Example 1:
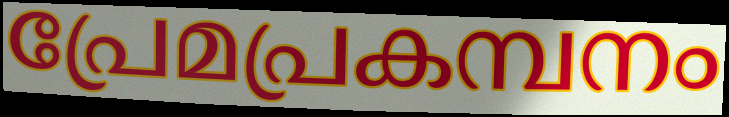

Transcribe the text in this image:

പ്രേമപ്രകമ്പനം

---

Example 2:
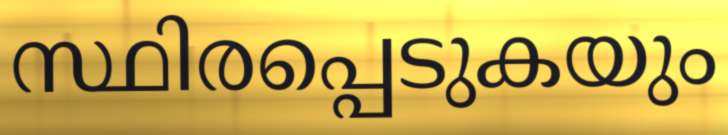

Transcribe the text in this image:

സ്ഥിരപ്പെടുകയും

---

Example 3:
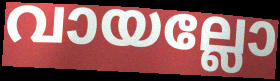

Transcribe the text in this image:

വായല്ലോ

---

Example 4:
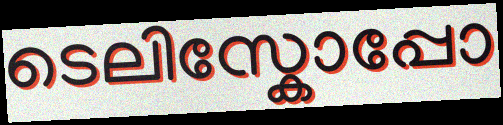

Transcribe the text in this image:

ടെലിസ്കോപ്പോ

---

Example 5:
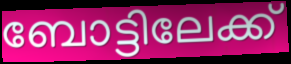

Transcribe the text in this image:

ബോട്ടിലേക്ക്